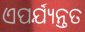
ଏପର୍ଯ୍ୟନ୍ତତ